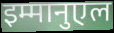
इम्मानुएल